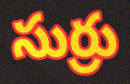
సుర్రు